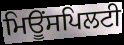
ਮਿਊਂਸਪਿਲਟੀ